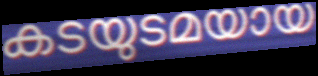
കടയുടമയായ